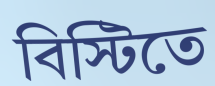
বিস্টিতে